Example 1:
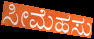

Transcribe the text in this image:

ಸೀಮೆಹಸು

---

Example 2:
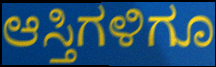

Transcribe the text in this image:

ಆಸ್ತಿಗಳಿಗೂ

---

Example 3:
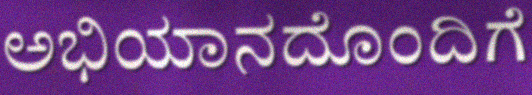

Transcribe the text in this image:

ಅಭಿಯಾನದೊಂದಿಗೆ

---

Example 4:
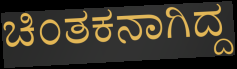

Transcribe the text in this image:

ಚಿಂತಕನಾಗಿದ್ದ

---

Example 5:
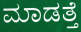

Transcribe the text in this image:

ಮಾಡತ್ತೆ